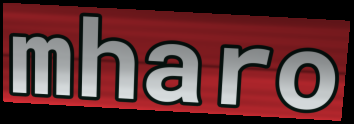
mharo